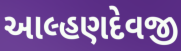
આલ્હણદેવજી